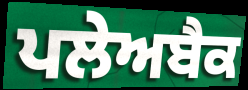
ਪਲੇਅਬੈਕ